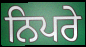
ਨਿਪਰੇ